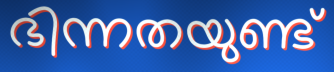
ഭിന്നതയുണ്ട്